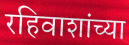
रहिवाशांच्या